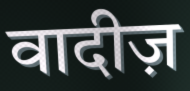
वादीज़